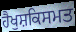
ਹੈਖੁਸ਼ਕਿਸਮਤ